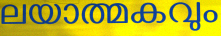
ലയാത്മകവും